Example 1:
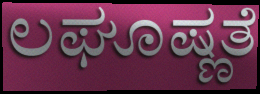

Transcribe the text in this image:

ಲಘೂಷ್ಣತೆ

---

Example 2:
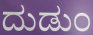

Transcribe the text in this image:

ದುಡುಂ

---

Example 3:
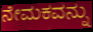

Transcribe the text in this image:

ನೇಮಕವನ್ನು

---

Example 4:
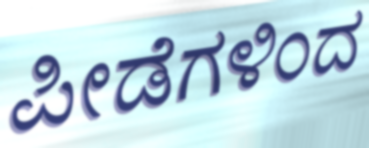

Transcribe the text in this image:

ಪೀಡೆಗಳಿಂದ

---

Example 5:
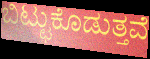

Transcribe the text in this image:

ಬಿಟ್ಟುಕೊಡುತ್ತವೆ